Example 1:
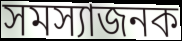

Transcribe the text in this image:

সমস্যাজনক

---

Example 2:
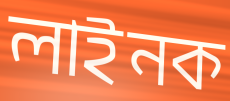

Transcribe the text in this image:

লাইনক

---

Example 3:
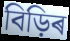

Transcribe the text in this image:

বিড়িৰ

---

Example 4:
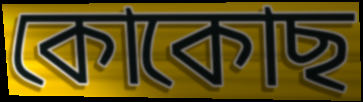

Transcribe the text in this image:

কোকোছ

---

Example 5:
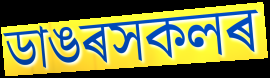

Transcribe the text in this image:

ডাঙৰসকলৰ